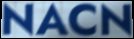
NACN